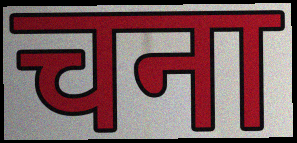
चना